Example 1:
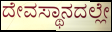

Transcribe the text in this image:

ದೇವಸ್ಥಾನದಲ್ಲೇ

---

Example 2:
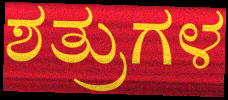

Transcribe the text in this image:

ಶತ್ರುಗಳ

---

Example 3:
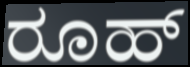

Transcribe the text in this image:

ರೂಹ್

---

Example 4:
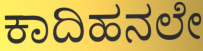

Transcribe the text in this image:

ಕಾದಿಹನಲೇ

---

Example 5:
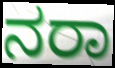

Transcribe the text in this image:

ನರಾ